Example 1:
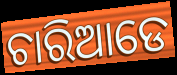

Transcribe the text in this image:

ଚାରିଆଡେ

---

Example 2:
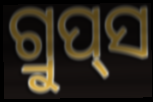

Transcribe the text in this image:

ଗ୍ରୁପ୍‌ସ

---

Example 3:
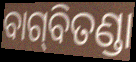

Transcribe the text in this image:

ବାଗ୍‌ବିତଣ୍ଡା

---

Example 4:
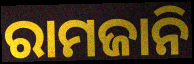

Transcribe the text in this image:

ରାମଜାନି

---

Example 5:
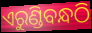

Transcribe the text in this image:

ଏରୁଣ୍ଡିବନ୍ଧଠି